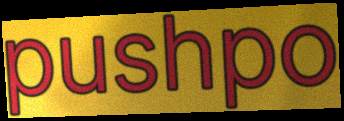
pushpo